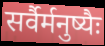
सर्वैर्मनुष्यैः